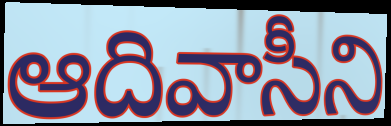
ఆదివాసీని